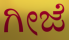
ಗೀಜೆ